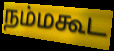
நம்மகூட